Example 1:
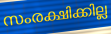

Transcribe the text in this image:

സംരക്ഷിക്കില്ല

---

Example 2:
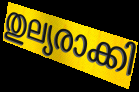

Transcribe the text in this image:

തുല്യരാക്കി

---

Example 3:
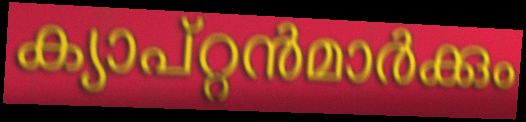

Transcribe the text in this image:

ക്യാപ്റ്റൻമാർക്കും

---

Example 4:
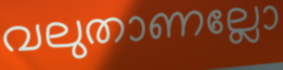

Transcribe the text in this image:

വലുതാണല്ലോ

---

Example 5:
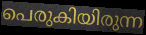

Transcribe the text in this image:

പെരുകിയിരുന്ന